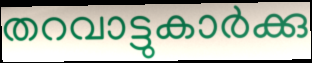
തറവാട്ടുകാർക്കു